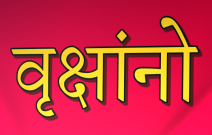
वृक्षांनो